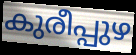
കുരീപ്പുഴ